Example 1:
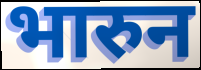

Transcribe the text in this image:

भारुन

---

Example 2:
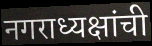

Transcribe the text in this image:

नगराध्यक्षांची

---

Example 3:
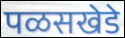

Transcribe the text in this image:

पळसखेडे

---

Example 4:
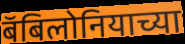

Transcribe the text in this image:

बॅबिलोनियाच्या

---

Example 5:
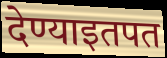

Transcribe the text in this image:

देण्याइतपत